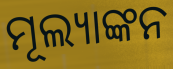
ମୂଲ୍ୟାଙ୍କନ